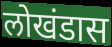
लोखंडास